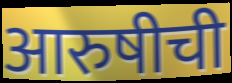
आरुषीची